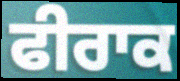
ਫੀਰਾਕ